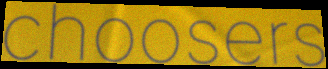
choosers